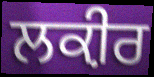
ਲਕ਼ੀਰ